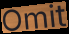
Omit